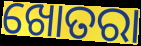
ଖୋତରା